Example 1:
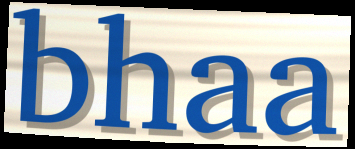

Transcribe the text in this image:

bhaa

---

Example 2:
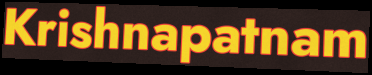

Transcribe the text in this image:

Krishnapatnam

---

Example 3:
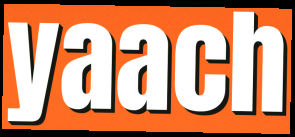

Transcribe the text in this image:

yaach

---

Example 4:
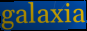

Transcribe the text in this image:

galaxia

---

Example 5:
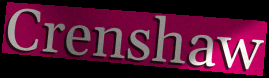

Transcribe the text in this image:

Crenshaw